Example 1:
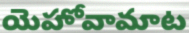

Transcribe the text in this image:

యెహోవామాట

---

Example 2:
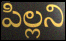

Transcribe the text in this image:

పిల్లని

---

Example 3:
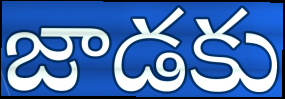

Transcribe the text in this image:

జాడకు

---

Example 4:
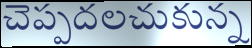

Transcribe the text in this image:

చెప్పదలచుకున్న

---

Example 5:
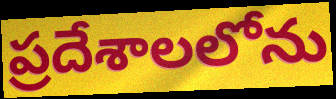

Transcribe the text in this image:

ప్రదేశాలలోను